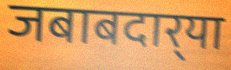
जबाबदार्‍या